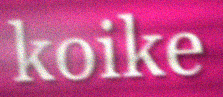
koike